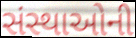
સંસ્થાઓની